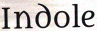
Indole